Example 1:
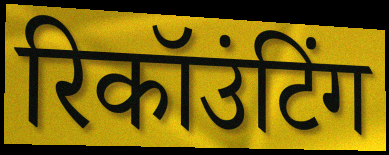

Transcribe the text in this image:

रिकॉउंटिंग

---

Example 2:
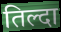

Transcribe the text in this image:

तिल्दा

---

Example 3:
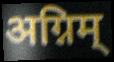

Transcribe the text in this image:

अग्निम्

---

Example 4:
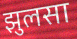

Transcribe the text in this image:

झुलसा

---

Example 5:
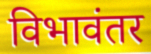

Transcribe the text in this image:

विभावंतर